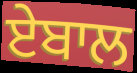
ਏਬਾਲ